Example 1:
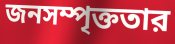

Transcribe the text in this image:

জনসম্পৃক্ততার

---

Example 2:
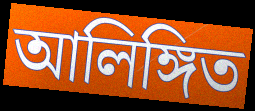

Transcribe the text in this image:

আলিঙ্গিত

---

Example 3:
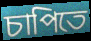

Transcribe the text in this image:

চাপিতে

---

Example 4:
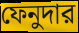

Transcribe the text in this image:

ফেনুদার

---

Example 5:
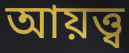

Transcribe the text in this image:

আয়ত্ত্ব